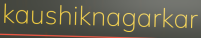
kaushiknagarkar